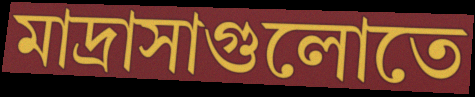
মাদ্রাসাগুলোতে